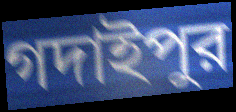
গদাইপুর